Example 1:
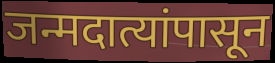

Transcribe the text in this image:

जन्मदात्यांपासून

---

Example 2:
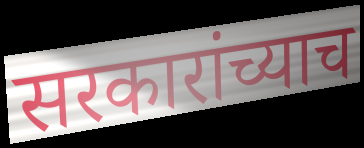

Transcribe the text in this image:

सरकारांच्याच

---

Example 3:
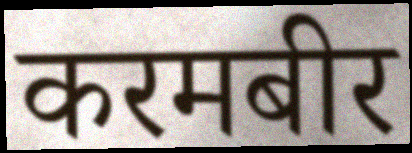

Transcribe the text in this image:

करमबीर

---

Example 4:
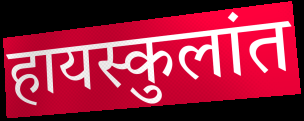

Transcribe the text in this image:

हायस्कुलांत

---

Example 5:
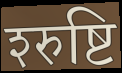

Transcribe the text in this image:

श्रुष्टि